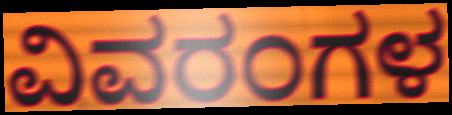
ವಿವರಂಗಳ